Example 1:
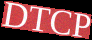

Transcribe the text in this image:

DTCP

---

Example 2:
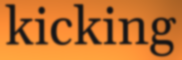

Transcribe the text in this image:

kicking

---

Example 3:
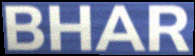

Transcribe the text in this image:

BHAR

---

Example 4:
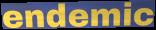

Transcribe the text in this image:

endemic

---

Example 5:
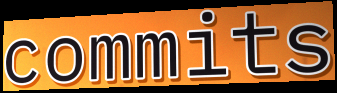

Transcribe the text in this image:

commits